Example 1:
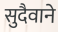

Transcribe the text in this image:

सुदैवाने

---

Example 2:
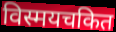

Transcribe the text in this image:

विस्मयचकित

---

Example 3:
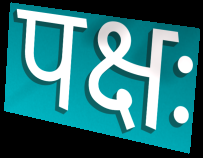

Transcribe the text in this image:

पक्षः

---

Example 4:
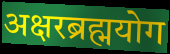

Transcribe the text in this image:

अक्षरब्रह्मयोग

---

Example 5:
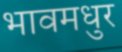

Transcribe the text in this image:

भावमधुर